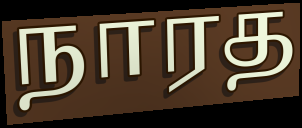
நாரத